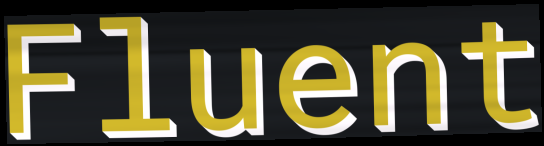
Fluent